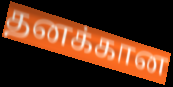
தனக்கான